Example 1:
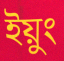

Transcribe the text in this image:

ইয়ুং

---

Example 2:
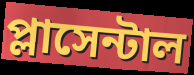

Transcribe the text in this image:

প্লাসেন্টাল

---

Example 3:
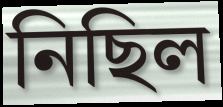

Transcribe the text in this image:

নিছিল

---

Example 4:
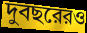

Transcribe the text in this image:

দুবছরেরও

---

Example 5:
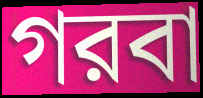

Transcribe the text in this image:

গরবা